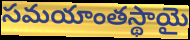
సమయాంతస్థాయై